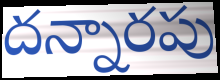
దన్నారపు